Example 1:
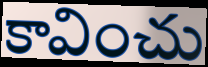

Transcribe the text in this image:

కావించు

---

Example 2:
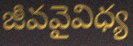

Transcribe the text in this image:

జీవవైవిధ్య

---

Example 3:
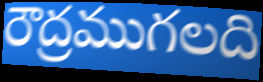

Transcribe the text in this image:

రౌద్రముగలది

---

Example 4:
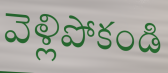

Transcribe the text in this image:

వెళ్లిపోకండి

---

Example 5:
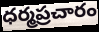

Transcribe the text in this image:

ధర్మప్రచారం